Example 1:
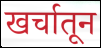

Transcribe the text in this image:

खर्चातून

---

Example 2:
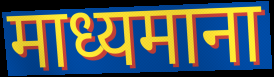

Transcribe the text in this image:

माध्यमाना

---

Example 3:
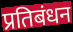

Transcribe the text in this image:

प्रतिबंधन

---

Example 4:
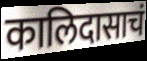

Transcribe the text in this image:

कालिदासाचं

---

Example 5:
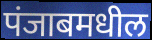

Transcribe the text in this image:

पंजाबमधील